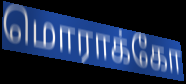
மொராக்கோ